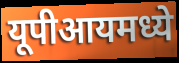
यूपीआयमध्ये